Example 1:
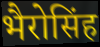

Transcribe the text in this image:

भैरोसिंह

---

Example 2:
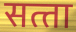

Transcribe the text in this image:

सत्‍ता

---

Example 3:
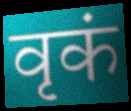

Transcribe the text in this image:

वृकं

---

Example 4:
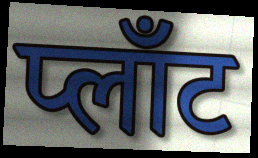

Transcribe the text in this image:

प्लाँट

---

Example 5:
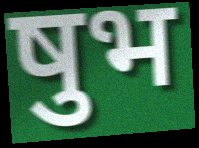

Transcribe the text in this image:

षुभ